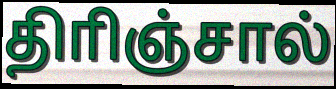
திரிஞ்சால்